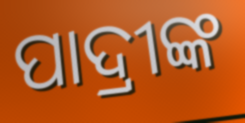
ପାଦ୍ରୀଙ୍କ